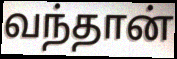
வந்தான்